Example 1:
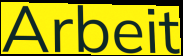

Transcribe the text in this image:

Arbeit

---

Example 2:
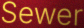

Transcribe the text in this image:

Sewer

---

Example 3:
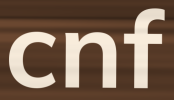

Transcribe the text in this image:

cnf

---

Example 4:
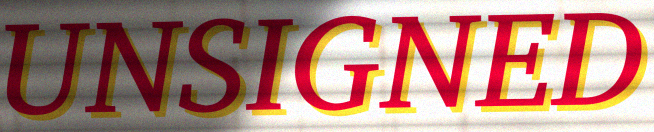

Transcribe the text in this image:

UNSIGNED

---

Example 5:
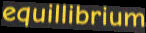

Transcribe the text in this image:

equillibrium